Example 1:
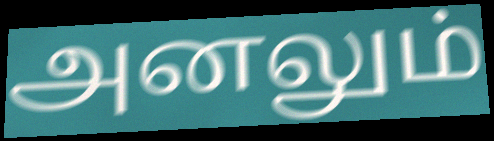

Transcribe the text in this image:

அனலும்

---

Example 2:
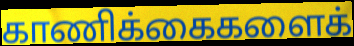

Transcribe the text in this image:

காணிக்கைகளைக்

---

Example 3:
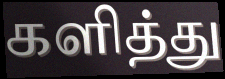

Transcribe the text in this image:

களித்து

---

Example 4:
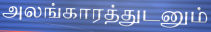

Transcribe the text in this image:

அலங்காரத்துடனும்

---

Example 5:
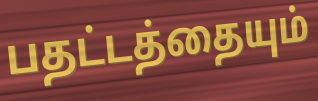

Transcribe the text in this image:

பதட்டத்தையும்